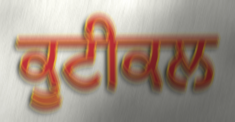
ਕੂਟੀਕਲ